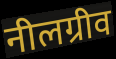
नीलग्रीव